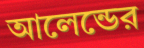
আলেন্ডের